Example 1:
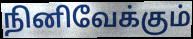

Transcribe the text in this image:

நினிவேக்கும்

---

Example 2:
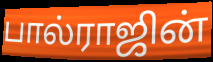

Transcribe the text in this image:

பால்ராஜின்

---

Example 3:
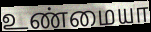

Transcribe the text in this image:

உண்மையா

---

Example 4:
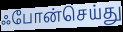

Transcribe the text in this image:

ஃபோன்செய்து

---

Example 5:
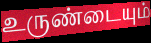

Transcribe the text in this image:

உருண்டையும்